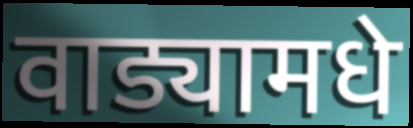
वाड्यामधे